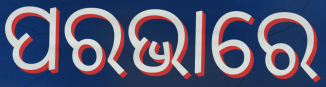
ପରଭାରେ